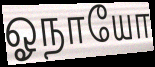
ஓநாயோ